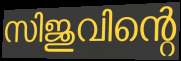
സിജുവിന്റെ